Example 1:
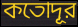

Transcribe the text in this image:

কতোদূর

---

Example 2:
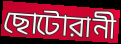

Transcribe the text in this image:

ছোটোরানী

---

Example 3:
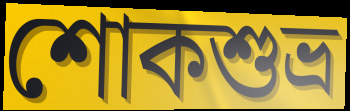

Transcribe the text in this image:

শোকশুভ্র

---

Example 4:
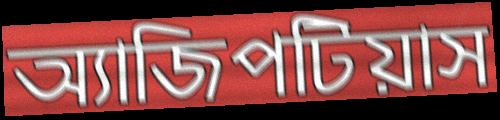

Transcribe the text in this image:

অ্যাজিপটিয়াস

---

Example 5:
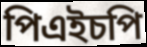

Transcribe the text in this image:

পিএইচপি